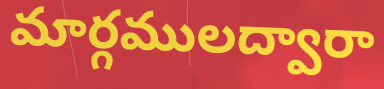
మార్గములద్వారా